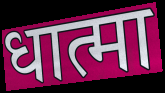
धात्मा